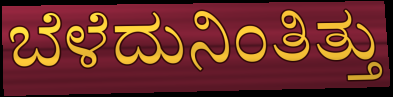
ಬೆಳೆದುನಿಂತಿತ್ತು